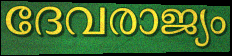
ദേവരാജ്യം